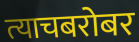
त्‍याचबरोबर